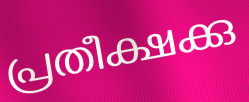
പ്രതീക്ഷക്കു